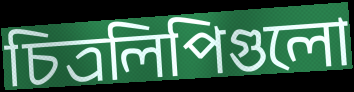
চিত্রলিপিগুলো